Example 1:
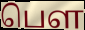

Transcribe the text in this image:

பெள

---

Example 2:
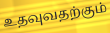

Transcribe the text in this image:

உதவுவதற்கும்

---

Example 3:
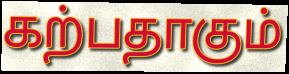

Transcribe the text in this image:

கற்பதாகும்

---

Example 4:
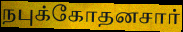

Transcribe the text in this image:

நபுக்கோதனசார்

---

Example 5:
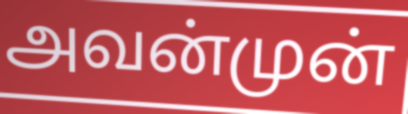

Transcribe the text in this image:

அவன்முன்